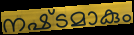
നഷ്‌ടമാകും